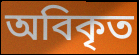
অবিকৃত